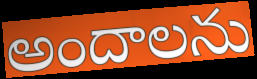
అందాలను